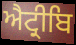
ਐਟ੍ਰੀਬਿ